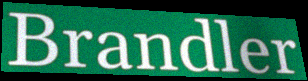
Brandler